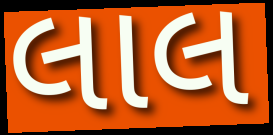
લાલ